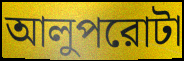
আলুপরোটা